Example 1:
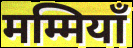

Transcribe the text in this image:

मम्मियाँ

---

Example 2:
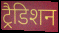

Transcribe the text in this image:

ट्रैडिशन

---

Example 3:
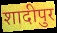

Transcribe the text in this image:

शादीपुर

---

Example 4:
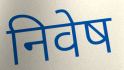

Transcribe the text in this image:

निवेष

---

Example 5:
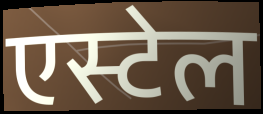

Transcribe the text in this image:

एस्टेल